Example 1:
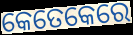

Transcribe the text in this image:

କେତେକେରେ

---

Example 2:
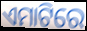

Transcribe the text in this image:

ଏମାଟିରେ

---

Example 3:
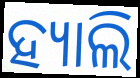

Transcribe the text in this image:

ହ୍ୟାଲି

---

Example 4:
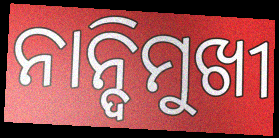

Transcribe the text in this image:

ନାନ୍ଦିମୁଖୀ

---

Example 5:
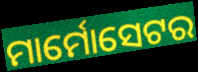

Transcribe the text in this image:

ମାର୍ମୋସେଟର